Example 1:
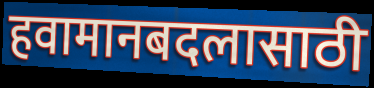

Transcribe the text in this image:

हवामानबदलासाठी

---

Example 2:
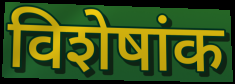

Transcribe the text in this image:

विशेषांक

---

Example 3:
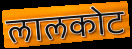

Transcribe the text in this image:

लालकोट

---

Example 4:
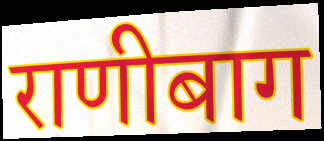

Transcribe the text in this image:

राणीबाग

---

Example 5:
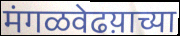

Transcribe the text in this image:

मंगळवेढय़ाच्या